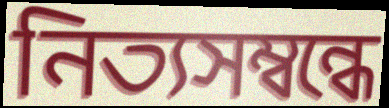
নিত্যসম্বন্ধে